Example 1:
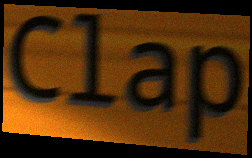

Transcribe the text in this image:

Clap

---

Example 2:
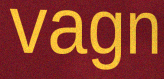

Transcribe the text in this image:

vagn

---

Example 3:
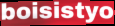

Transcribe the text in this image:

boisistyo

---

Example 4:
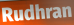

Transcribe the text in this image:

Rudhran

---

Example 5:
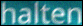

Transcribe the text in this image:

halten